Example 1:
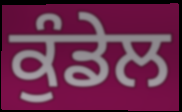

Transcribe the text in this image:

ਕੁੰਡੇਲ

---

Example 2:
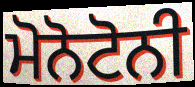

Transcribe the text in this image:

ਮੋਨੋਟੋਨੀ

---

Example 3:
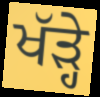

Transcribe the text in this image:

ਖੱੜ੍ਹੇ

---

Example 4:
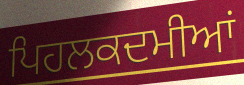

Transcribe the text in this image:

ਪਿਹਲਕਦਮੀਆਂ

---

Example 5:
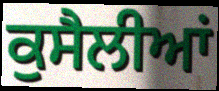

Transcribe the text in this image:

ਕੁਸੈਲੀਆਂ